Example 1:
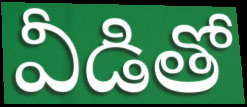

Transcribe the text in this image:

వీడితో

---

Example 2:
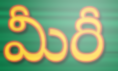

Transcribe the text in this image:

మీరీ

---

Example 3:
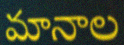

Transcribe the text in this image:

మానాల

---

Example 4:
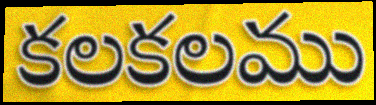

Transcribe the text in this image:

కలకలము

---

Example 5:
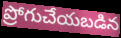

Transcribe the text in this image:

ప్రోగుచేయబడిన